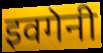
इवगेनी